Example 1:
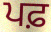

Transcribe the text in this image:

ਪਫ਼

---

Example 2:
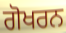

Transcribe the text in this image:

ਗੋਖਰਨ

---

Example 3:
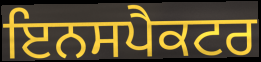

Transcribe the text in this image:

ਇਨਸਪੈਕਟਰ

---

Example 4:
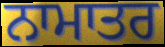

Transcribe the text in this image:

ਨਾਮਾਤਰ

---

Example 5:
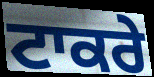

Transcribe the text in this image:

ਟਾਕਰੇ